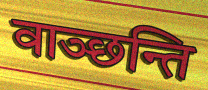
वाञ्छन्ति